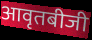
आवृतबीजी